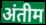
अंतीम